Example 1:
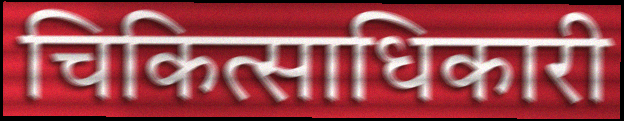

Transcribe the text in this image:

चिकित्साधिकारी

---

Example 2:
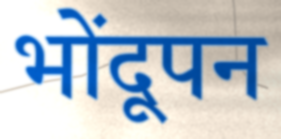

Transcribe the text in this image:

भोंदूपन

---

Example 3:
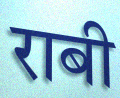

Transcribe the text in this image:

राबी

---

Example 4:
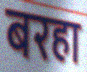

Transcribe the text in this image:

बरहा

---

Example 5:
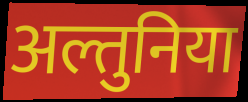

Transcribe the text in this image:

अल्तुनिया